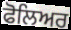
ਫੋਲਿਅਰ